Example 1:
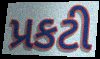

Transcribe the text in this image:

પ્રકટી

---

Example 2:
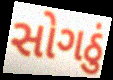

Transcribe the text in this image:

સોગઠું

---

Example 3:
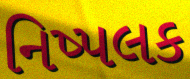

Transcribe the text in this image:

નિષ્પલક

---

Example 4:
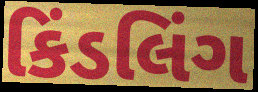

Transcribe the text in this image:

કિંડલિંગ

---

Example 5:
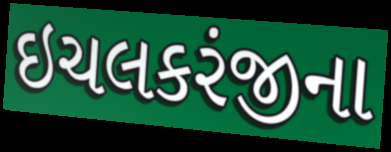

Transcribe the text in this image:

ઇચલકરંજીના